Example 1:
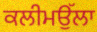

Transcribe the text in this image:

ਕਲੀਮਉੱਲਾ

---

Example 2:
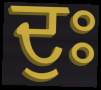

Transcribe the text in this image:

ਦੁਃ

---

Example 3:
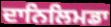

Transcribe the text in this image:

ਦਾਨਿਲਿਮਡਾ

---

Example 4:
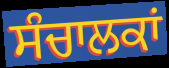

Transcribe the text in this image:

ਸੰਚਾਲਕਾਂ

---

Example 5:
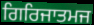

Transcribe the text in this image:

ਗਿਰਿਜਾਤਮਜ